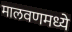
मालवणमध्ये